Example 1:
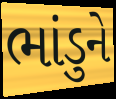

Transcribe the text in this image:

ભાંડુને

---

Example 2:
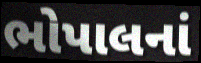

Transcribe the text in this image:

ભોપાલનાં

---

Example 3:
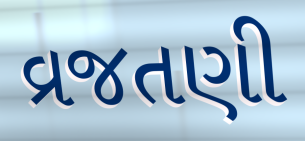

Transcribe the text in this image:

વ્રજતણી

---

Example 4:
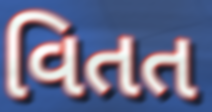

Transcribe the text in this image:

વિતત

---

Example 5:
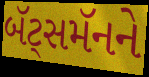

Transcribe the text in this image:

બૅટ્સમૅનને